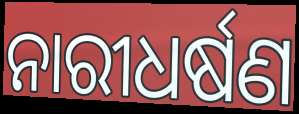
ନାରୀଧର୍ଷଣ